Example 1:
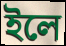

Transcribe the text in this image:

ইলে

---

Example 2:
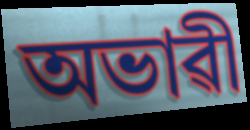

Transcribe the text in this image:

অভাৱী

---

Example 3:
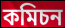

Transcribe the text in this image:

কমিচন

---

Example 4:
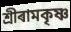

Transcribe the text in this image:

শ্ৰীৰামকৃষ্ণ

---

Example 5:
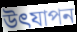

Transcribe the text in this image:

উৎযাপন